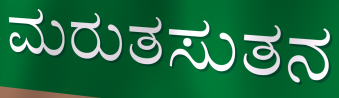
ಮರುತಸುತನ